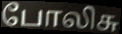
போலிசு